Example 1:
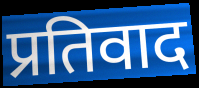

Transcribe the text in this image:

प्रतिवाद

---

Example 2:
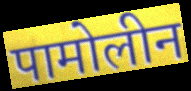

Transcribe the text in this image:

पामोलीन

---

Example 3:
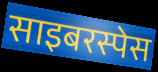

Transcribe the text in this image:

साइबरस्पेस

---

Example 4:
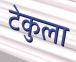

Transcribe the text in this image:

टेकुला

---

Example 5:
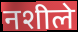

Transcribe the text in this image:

नशीले